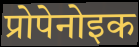
प्रोपेनोइक